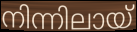
നിന്നിലായ്